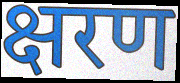
क्षरण